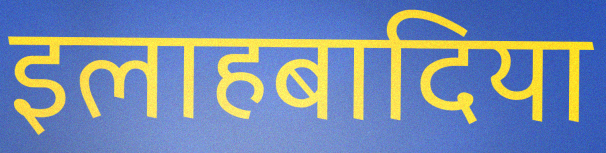
इलाहबादिया